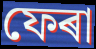
ফেৰা